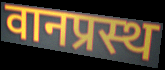
वानप्रस्थ